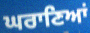
ਘਰਾਣਿਆਂ